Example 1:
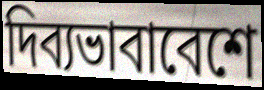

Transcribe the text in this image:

দিব্যভাবাবেশে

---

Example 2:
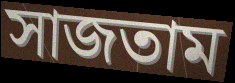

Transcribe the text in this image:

সাজতাম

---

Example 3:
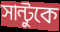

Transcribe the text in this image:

সান্টুকে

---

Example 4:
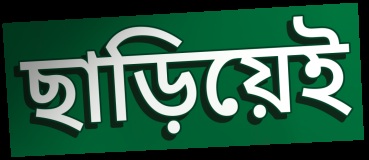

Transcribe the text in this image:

ছাড়িয়েই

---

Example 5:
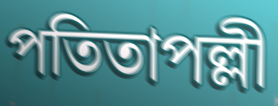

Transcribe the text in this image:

পতিতাপল্লী